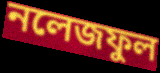
নলেজফুল